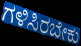
ಗಳಿಸಿರಬೇಕು